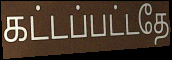
கட்டப்பட்டதே